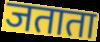
जताता